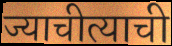
ज्याचीत्याची